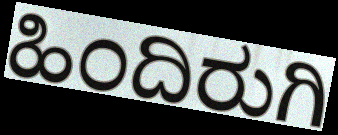
ಹಿಂದಿರುಗಿ